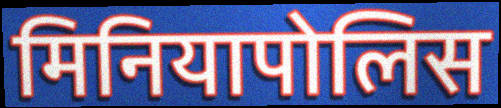
मिनियापोलिस